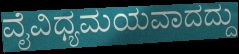
ವೈವಿಧ್ಯಮಯವಾದದ್ದು